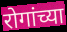
रोगांच्या